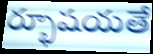
ర్భూషయతే